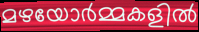
മഴയോർമ്മകളിൽ